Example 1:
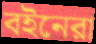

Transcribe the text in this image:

বইনেরা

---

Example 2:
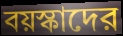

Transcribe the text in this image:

বয়স্কাদের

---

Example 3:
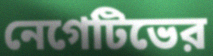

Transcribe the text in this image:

নেগেটিভের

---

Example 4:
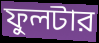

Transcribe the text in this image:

ফুলটার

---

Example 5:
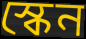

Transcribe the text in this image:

স্কেন